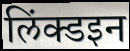
लिंक्डइन